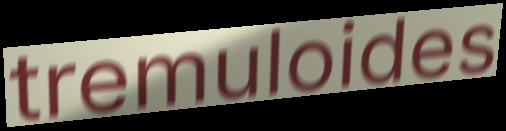
tremuloides